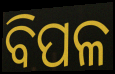
ବିପଳ